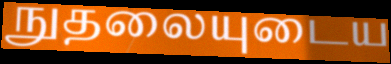
நுதலையுடைய